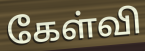
கேள்வி